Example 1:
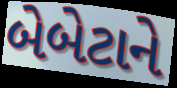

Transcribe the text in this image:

બેબેટાને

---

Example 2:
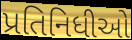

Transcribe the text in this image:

પ્રતિનિધીઓ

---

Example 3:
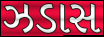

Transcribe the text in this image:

ઝડાસ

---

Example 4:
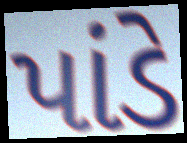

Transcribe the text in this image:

પાંડે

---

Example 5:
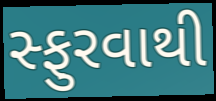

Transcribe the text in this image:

સ્ફુરવાથી